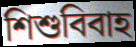
শিশুবিবাহ